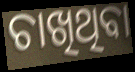
ଚାଖିଥିବା